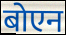
बोएन